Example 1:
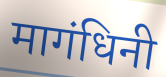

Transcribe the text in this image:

मागंधिनी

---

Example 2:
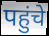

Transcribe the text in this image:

पहुंचे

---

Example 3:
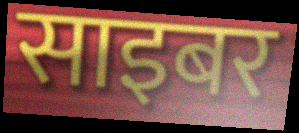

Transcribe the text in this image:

साइबर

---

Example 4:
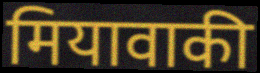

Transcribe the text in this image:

मियावाकी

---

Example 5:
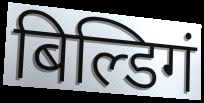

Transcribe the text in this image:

बिल्डिगं